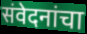
संवेदनांचा